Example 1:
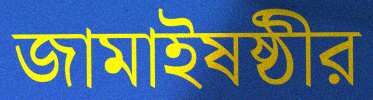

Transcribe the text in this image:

জামাইষষ্ঠীর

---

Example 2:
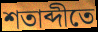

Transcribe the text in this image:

শতাব্দীতে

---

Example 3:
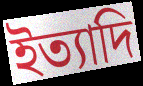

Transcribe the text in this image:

ইত্যাদি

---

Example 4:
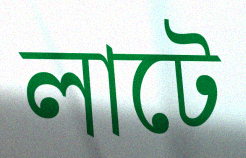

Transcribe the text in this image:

লাটে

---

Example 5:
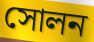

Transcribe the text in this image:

সোলন